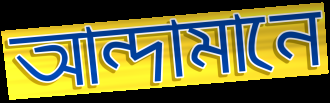
আন্দামানে